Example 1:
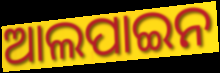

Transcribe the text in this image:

ଆଲପାଇନ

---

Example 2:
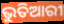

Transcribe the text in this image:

ଭୁତିଆରୀ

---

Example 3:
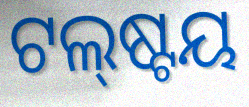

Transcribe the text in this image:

ଟଲ୍‌ଷ୍ଟୟ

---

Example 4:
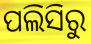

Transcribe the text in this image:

ପଲିସିରୁ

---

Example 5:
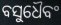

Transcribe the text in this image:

ବସୁଧୈବଂ